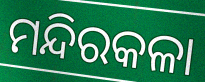
ମନ୍ଦିରକଳା